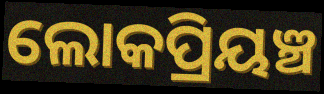
ଲୋକପ୍ରିୟଞ୍ଚ